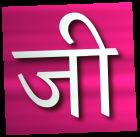
जी